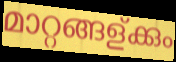
മാറ്റങ്ങള്ക്കും